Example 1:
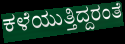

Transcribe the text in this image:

ಕಳೆಯುತ್ತಿದ್ದರಂತೆ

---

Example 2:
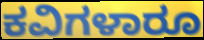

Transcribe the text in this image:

ಕವಿಗಳಾರೂ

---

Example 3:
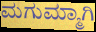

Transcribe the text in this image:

ಮಗುಮ್ಮಾಗಿ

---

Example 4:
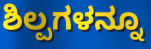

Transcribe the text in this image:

ಶಿಲ್ಪಗಳನ್ನೂ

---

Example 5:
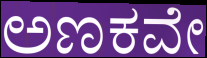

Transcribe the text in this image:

ಅಣಕವೇ